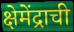
क्षेमेंद्राची